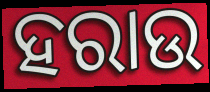
ହରାଉ